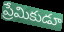
ప్రేమికుడూ